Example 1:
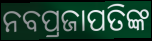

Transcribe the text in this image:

ନବପ୍ରଜାପତିଙ୍କ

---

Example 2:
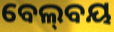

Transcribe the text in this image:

ବେଲ୍‍ବୟ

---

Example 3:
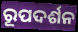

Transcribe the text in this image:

ରୂପଦର୍ଶନ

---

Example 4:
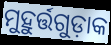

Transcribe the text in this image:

ମୁହୁର୍ତ୍ତଗୁଡ଼ାକ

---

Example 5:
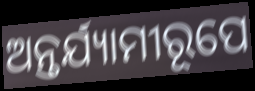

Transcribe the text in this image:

ଅନ୍ତର୍ଯ୍ୟାମୀରୂପେ